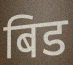
बिड